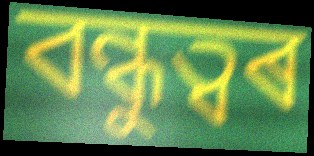
বন্ধুত্বৰ